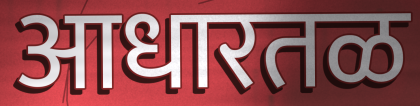
आधारतळ